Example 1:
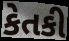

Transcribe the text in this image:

કેતકી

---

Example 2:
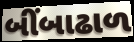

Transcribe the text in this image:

બીંબાઢાળ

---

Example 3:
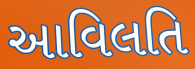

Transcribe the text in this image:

આવિલતિ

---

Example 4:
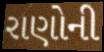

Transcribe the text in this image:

રાણોની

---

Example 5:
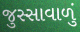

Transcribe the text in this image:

જુસ્સાવાળું